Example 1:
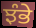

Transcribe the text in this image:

ਝੰਭੇ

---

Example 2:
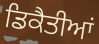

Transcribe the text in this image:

ਡਿਕੈਤੀਆਂ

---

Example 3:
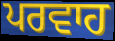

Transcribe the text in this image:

ਪਰਵਾਹ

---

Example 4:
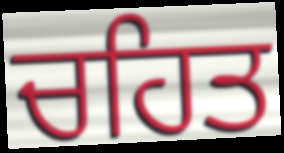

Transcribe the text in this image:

ਚਹਿਤ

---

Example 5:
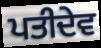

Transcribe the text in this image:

ਪਤੀਦੇਵ